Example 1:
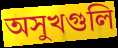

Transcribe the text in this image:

অসুখগুলি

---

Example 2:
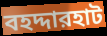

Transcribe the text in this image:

বহদ্দারহাট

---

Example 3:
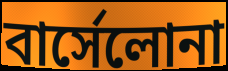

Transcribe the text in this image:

বার্সেলোনা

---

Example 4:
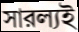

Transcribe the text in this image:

সারল্যই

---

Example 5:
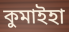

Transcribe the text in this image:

কুমাইহা